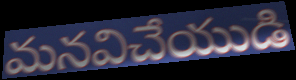
మనవిచేయుడి